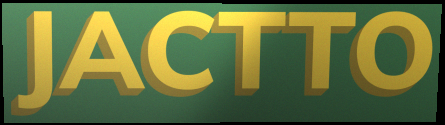
JACTTO